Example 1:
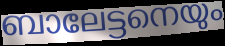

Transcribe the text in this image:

ബാലേട്ടനെയും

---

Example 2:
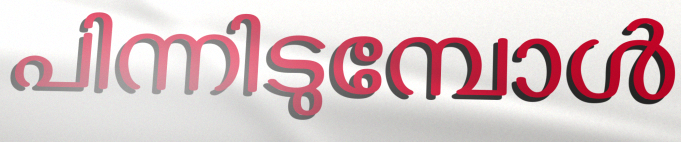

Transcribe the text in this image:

പിന്നിടുമ്പോൾ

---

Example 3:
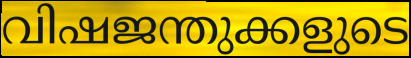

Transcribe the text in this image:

വിഷജന്തുക്കളുടെ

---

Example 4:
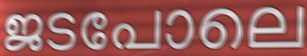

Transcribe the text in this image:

ജടപോലെ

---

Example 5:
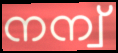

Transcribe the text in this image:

നന്വ്